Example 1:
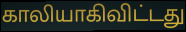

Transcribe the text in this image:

காலியாகிவிட்டது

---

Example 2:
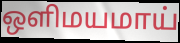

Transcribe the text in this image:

ஒளிமயமாய்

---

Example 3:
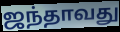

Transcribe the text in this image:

ஜந்தாவது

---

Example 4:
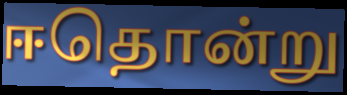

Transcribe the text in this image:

ஈதொன்று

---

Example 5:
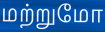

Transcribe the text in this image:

மற்றுமோ